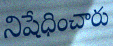
నిషేధించారు